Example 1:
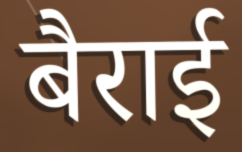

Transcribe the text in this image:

बैराई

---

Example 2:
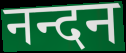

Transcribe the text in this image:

नन्‍दन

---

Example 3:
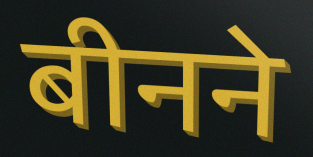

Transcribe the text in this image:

बीनने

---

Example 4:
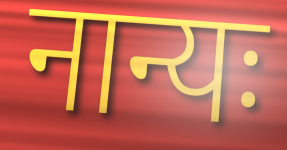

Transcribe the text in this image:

नान्यः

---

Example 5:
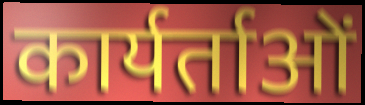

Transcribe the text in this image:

कार्यर्ताओं